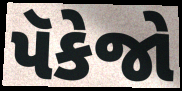
પૅકેજો